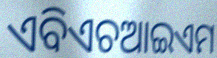
ଏବିଏଚଆଇଏମ